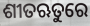
ଶୀତଋତୁରେ